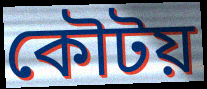
কৌটয়